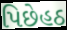
પિછેહઠ